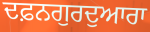
ਦਫ਼ਨਗੁਰਦੁਆਰਾ